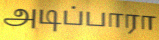
அடிப்பாரா